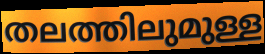
തലത്തിലുമുള്ള